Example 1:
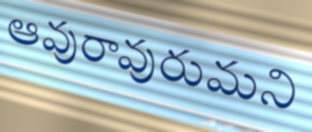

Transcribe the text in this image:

ఆవురావురుమని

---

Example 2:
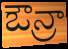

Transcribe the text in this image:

ఔన్రా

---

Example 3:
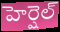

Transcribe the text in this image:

హెర్షెల్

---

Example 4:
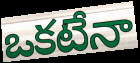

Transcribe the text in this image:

ఒకటేనా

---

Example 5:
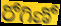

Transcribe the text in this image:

రోగిణో